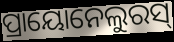
ପ୍ରାୟୋନେଲୁରସ୍